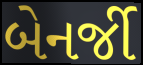
બેનર્જી